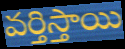
వర్తిస్తాయి